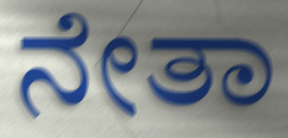
ನೇತಾ